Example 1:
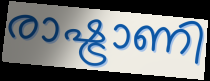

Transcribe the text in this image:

രാഷ്ട്രാണി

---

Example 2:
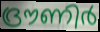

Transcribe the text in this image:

ദ്രൗണിർ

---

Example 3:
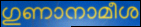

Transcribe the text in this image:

ഗുണാനാമീശ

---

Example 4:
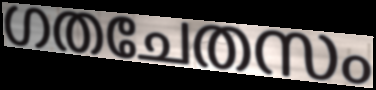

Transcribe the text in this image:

ഗതചേതസം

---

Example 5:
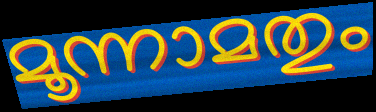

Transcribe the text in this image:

മൂന്നാമതും